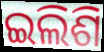
ଇଲିଶି